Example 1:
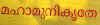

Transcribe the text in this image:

മഹാമുനികൃതേ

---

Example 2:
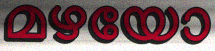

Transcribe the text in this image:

മഴയോ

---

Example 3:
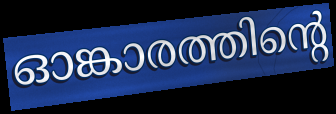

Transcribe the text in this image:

ഓങ്കാരത്തിന്റെ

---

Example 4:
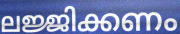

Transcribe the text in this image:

ലജ്ജിക്കണം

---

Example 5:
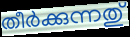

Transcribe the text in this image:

തീർക്കുന്നതു്